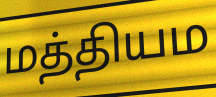
மத்தியம